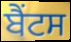
ਬੈਂਟਸ